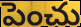
పెంచు